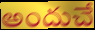
అందుచే